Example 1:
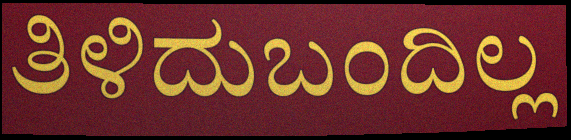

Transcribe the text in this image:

ತಿಳಿದುಬಂದಿಲ್ಲ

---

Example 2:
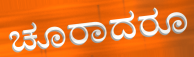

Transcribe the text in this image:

ಚೂರಾದರೂ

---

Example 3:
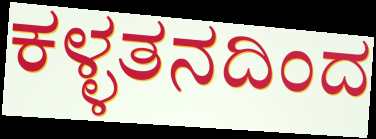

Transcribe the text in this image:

ಕಳ್ಳತನದಿಂದ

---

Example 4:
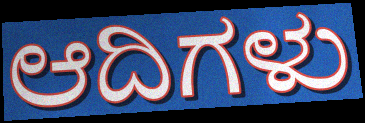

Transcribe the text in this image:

ಆದಿಗಳು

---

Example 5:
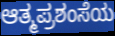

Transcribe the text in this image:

ಆತ್ಮಪ್ರಶಂಸೆಯ